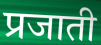
प्रजाती